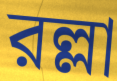
রল্লা